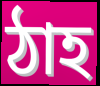
ঠাহ